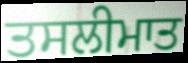
ਤਸਲੀਮਾਤ